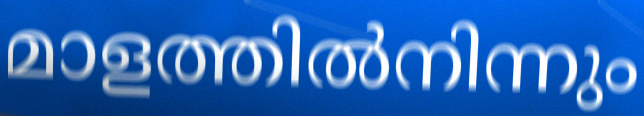
മാളത്തിൽനിന്നും